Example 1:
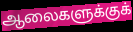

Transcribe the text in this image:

ஆலைகளுக்குக்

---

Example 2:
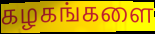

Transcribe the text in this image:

கழகங்களை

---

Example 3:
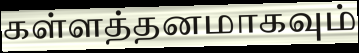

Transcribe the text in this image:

கள்ளத்தனமாகவும்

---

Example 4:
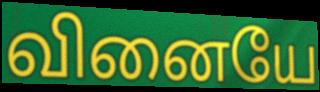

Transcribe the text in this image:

வினையே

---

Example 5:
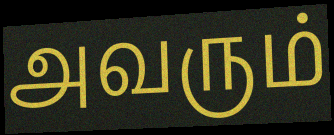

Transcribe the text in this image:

அவரும்